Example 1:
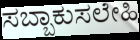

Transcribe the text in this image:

ಸಬ್ಬಾಕುಸಲೇಹಿ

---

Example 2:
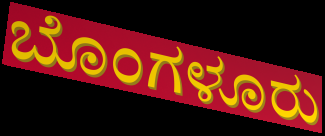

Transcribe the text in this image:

ಬೊಂಗಳೂರು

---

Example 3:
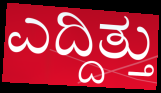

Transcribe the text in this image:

ಎದ್ದಿತ್ತು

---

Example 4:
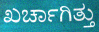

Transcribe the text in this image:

ಖರ್ಚಾಗಿತ್ತು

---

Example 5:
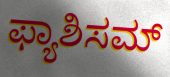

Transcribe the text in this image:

ಫ್ಯಾಶಿಸಮ್